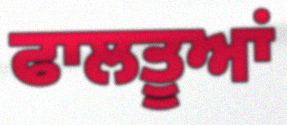
ਫਾਲਤੂਆਂ